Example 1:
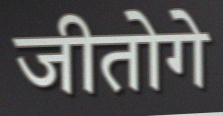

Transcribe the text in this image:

जीतोगे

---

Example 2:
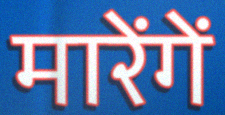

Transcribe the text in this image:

मारेंगें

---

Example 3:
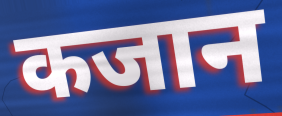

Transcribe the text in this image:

कजान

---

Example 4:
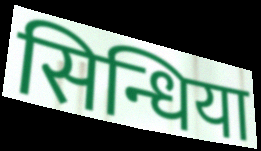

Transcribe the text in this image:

सिन्धिया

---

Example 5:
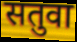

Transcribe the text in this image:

सतुवा